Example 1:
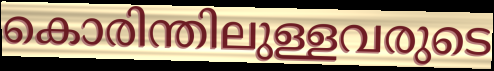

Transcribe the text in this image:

കൊരിന്തിലുള്ളവരുടെ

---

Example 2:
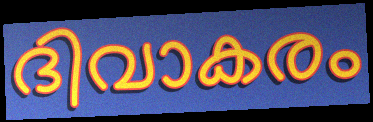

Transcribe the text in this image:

ദിവാകരം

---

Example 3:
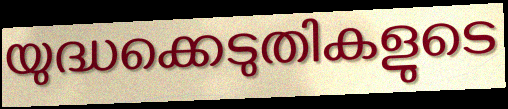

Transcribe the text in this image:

യുദ്ധക്കെടുതികളുടെ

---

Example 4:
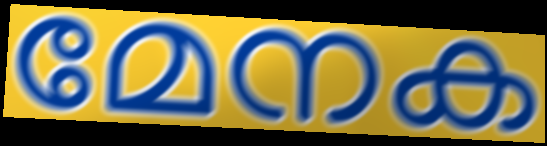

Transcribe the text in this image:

മേനക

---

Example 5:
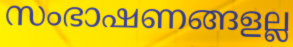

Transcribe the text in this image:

സംഭാഷണങ്ങളല്ല